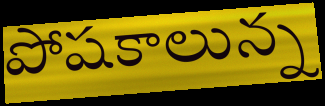
పోషకాలున్న